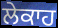
ਲੇਕਾਹ